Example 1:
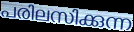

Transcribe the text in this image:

പരിലസിക്കുന്ന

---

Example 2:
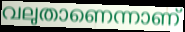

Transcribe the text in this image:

വലുതാണെന്നാണ്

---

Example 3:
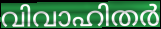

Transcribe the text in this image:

വിവാഹിതർ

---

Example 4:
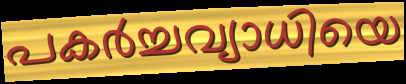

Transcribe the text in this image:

പകർച്ചവ്യാധിയെ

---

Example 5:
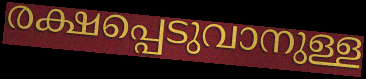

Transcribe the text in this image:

രക്ഷപ്പെടുവാനുള്ള